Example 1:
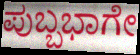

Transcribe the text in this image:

ಪುಬ್ಬಭಾಗೇ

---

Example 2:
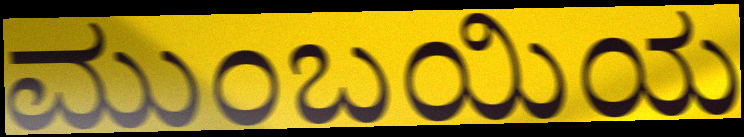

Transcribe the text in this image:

ಮುಂಬಯಿಯ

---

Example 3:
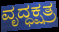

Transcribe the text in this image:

ವೃದ್ಧಕ್ಷತ್ರ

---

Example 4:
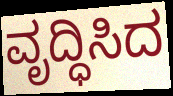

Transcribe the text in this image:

ವೃದ್ಧಿಸಿದ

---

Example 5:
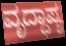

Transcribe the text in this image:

ವೃದ್ಧಾಪ್ಯ